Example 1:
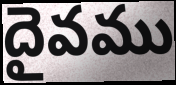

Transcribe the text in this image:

దైవము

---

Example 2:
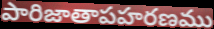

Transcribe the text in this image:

పారిజాతాపహరణము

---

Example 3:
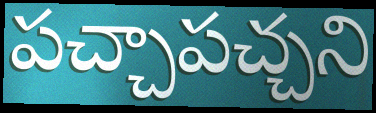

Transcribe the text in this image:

పచ్చాపచ్చని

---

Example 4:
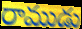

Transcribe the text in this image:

రాముడు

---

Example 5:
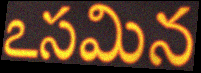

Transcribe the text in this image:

ఽసమిన